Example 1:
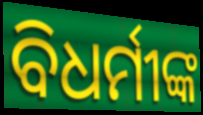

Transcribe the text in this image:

ବିଧର୍ମୀଙ୍କ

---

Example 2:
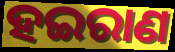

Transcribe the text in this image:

ହଇରାଣ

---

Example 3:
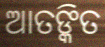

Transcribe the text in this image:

ଆତଙ୍କିତ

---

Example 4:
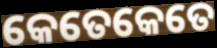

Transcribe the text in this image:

କେତେକେତେ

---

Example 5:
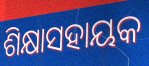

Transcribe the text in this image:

ଶିକ୍ଷାସହାୟକ